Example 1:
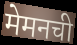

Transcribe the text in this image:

मेमनची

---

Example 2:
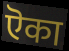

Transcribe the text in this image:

ऎका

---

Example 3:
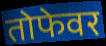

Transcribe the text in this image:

तोफेवर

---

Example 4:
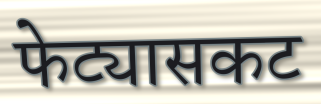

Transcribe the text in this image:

फेट्यासकट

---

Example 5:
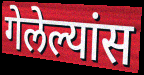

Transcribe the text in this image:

गेलेल्यांस